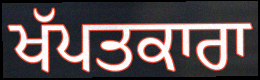
ਖੱਪਤਕਾਰਾ